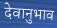
देवानुभाव